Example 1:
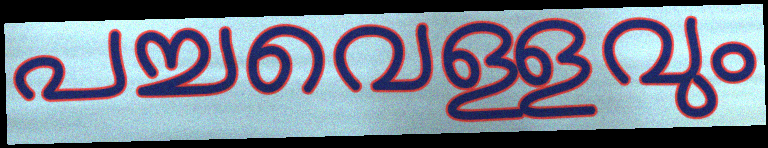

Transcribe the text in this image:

പച്ചവെള്ളവും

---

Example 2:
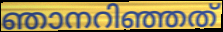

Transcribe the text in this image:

ഞാനറിഞ്ഞത്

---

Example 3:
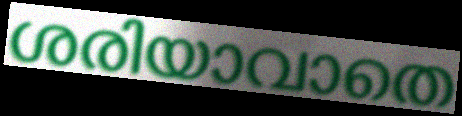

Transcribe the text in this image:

ശരിയാവാതെ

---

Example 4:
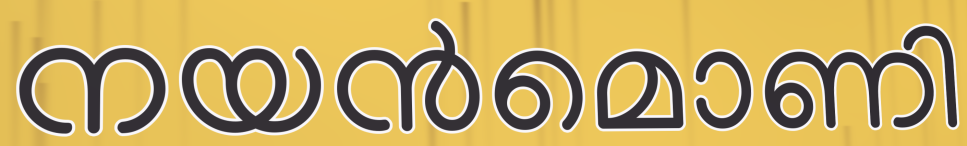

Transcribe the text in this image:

നയൻമൊണി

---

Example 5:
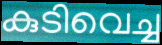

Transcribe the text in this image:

കുടിവെച്ച